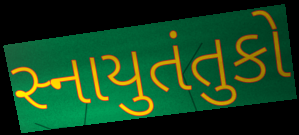
સ્નાયુતંતુકો